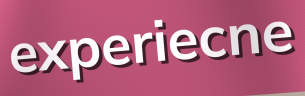
experiecne